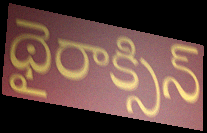
థైరాక్సిన్